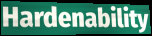
Hardenability